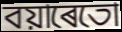
বয়াৰেতো